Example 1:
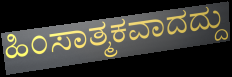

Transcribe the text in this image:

ಹಿಂಸಾತ್ಮಕವಾದದ್ದು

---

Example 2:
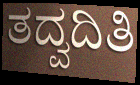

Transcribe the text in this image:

ತದ್ವದಿತಿ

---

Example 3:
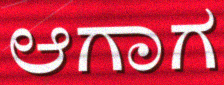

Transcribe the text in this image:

ಆಗಾಗ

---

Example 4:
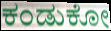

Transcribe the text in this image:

ಕಂಡುಕೋ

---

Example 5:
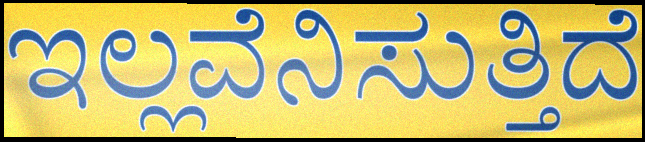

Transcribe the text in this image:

ಇಲ್ಲವೆನಿಸುತ್ತಿದೆ